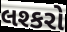
લશ્કરો